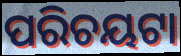
ପରିଚୟଟା